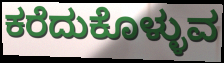
ಕರೆದುಕೊಳ್ಳುವ